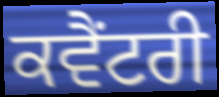
ਕਵੈਂਟਰੀ